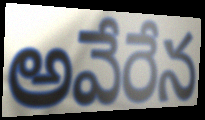
అవేరేన